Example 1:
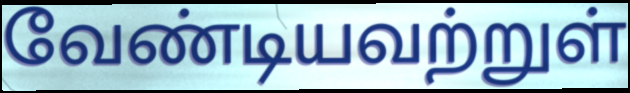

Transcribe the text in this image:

வேண்டியவற்றுள்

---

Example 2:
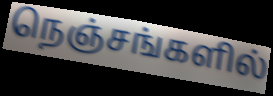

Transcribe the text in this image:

நெஞ்சங்களில்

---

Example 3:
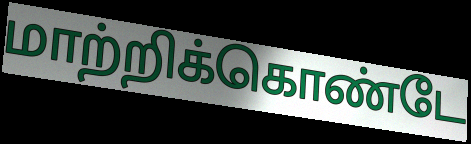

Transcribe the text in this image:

மாற்றிக்கொண்டே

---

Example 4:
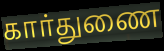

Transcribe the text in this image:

கார்துணை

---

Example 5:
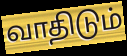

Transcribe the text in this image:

வாதிடும்